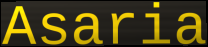
Asaria